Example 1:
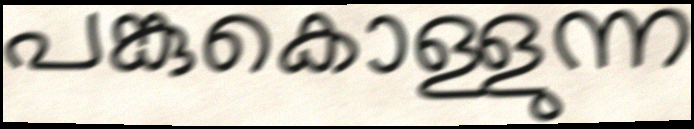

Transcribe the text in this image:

പങ്കുകൊള്ളുന്ന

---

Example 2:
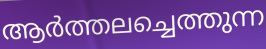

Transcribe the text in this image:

ആർത്തലച്ചെത്തുന്ന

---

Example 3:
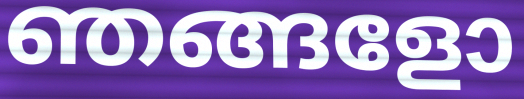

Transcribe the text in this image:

ഞങ്ങളോ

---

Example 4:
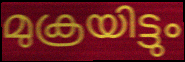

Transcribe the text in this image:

മുക്രയിട്ടും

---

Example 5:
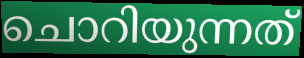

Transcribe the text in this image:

ചൊറിയുന്നത്